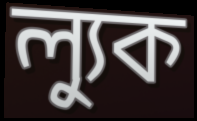
ল্যুক